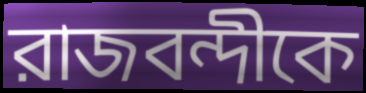
রাজবন্দীকে